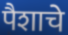
पैशाचे